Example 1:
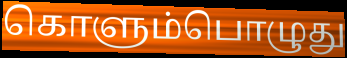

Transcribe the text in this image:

கொளும்பொழுது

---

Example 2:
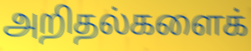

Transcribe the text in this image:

அறிதல்களைக்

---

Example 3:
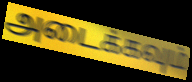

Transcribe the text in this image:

அடைக்கவும்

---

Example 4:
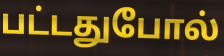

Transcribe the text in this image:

பட்டதுபோல்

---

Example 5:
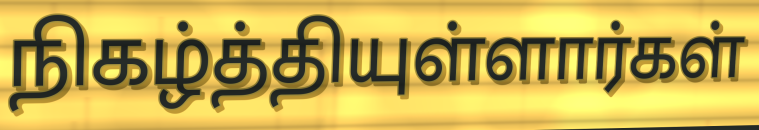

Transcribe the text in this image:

நிகழ்த்தியுள்ளார்கள்